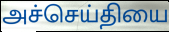
அச்செய்தியை